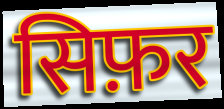
सिफ़र